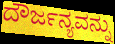
ದೌರ್ಜನ್ಯವನ್ನು